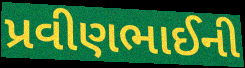
પ્રવીણભાઈની